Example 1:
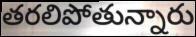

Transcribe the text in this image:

తరలిపోతున్నారు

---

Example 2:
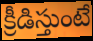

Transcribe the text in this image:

క్రీడిస్తుంటే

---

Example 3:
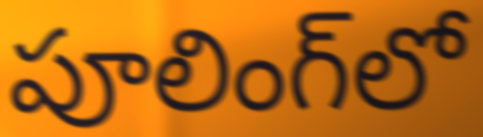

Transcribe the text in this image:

పూలింగ్‌లో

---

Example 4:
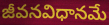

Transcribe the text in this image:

జీవనవిధానమే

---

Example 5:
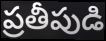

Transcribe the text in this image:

ప్రతీపుడి